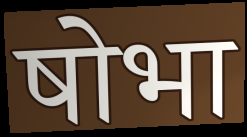
षोभा